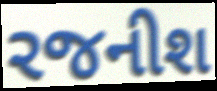
રજનીશ